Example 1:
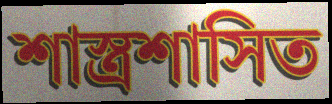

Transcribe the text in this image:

শাস্ত্রশাসিত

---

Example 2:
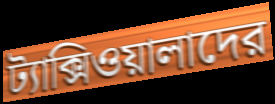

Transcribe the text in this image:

ট্যাক্সিওয়ালাদের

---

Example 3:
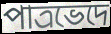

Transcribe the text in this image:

পাত্রভেদে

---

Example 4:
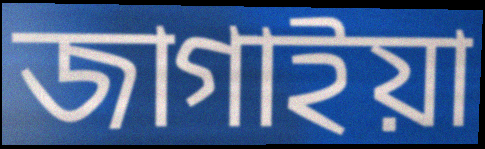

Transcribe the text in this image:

জাগাইয়া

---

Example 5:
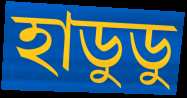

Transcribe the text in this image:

হাডুডু